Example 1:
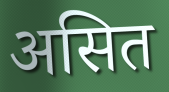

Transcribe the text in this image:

असित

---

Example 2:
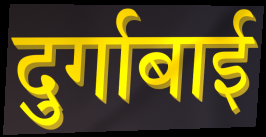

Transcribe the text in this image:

दुर्गाबाई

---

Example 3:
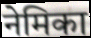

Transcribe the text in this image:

नेमिका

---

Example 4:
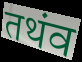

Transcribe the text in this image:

तथंव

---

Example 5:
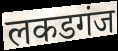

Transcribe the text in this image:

लकडगंज